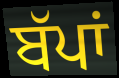
ਬੱਪਾਂ